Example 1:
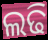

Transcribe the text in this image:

ଲଢି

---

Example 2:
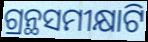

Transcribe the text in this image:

ଗ୍ରନ୍ଥସମୀକ୍ଷାଟି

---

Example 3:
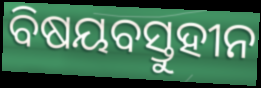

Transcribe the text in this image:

ବିଷୟବସ୍ତୁହୀନ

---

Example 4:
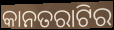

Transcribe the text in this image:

କାନତରାଟିର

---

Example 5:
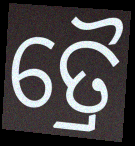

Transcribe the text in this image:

ତ୍ରୈ